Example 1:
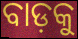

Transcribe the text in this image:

ବାଡ଼କୁ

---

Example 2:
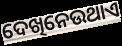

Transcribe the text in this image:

ଦେଖିନେଉଥାଏ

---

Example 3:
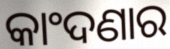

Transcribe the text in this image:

କାଂଦଣାର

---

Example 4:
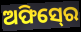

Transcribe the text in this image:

ଅଫିସ୍‍ରେ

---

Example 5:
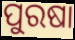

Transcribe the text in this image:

ପୁରଷା